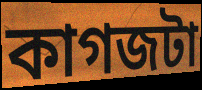
কাগজটা